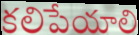
కలిపేయాలి